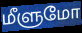
மீளுமோ